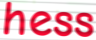
hess